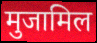
मुजामिल